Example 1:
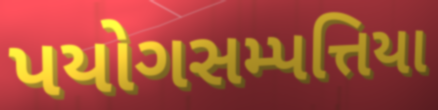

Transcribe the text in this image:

પયોગસમ્પત્તિયા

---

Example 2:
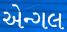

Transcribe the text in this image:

એન્ગલ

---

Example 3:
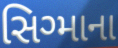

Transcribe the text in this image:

સિગ્માના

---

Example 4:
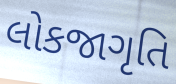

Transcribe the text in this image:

લોકજાગૃતિ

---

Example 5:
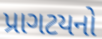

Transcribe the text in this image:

પ્રાગટયનો